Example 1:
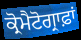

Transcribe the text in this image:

ਕ੍ਰੋਮੈਟੋਗ੍ਰਾਫ਼ਾਂ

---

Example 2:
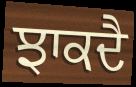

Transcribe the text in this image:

ਝਾਕਦੈ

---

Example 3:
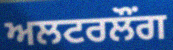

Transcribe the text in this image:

ਅਲਟਰਲੌਂਗ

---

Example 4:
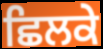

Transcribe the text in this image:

ਛਿਲਕੇ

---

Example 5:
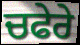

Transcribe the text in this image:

ਚਫੇਰੇ